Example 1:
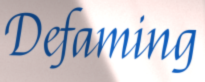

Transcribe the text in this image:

Defaming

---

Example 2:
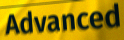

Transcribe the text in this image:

Advanced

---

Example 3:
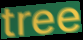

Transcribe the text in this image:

tree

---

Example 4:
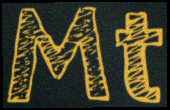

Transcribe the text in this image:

Mt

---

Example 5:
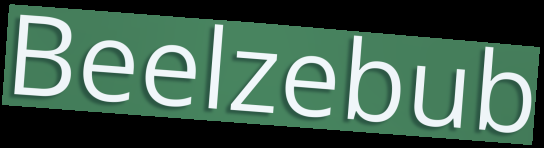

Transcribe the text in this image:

Beelzebub